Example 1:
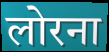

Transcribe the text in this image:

लोरना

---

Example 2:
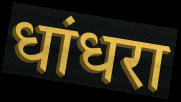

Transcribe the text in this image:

धांधरा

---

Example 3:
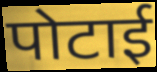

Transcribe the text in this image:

पोटाई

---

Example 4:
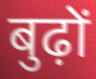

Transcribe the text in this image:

बुढ़ों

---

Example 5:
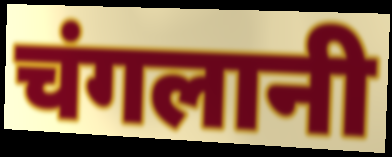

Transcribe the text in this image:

चंगलानी